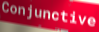
Conjunctive